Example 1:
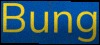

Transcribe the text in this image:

Bung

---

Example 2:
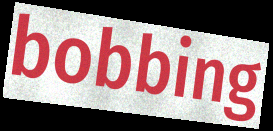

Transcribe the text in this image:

bobbing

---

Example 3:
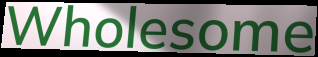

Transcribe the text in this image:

Wholesome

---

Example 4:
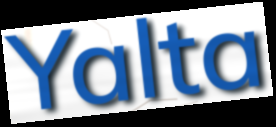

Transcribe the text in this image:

Yalta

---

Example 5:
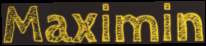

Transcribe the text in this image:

Maximin